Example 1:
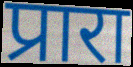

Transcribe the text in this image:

प्रारा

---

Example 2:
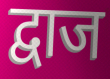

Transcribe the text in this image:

द्वाज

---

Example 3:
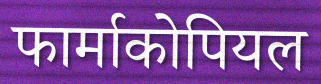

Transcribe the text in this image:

फार्माकोपियल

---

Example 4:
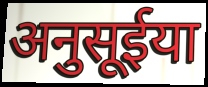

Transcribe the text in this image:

अनुसूईया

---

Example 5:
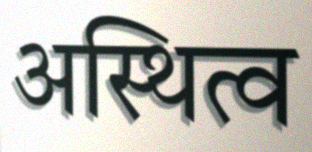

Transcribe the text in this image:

अस्थित्व